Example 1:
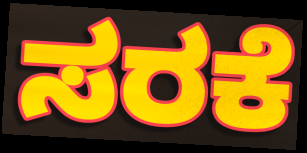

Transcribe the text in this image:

ಸರಕೆ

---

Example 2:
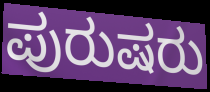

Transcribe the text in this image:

ಪುರುಷರು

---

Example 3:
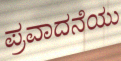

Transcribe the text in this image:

ಪ್ರವಾದನೆಯು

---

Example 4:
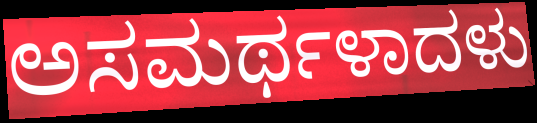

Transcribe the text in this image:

ಅಸಮರ್ಥಳಾದಳು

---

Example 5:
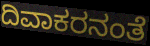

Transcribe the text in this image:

ದಿವಾಕರನಂತೆ